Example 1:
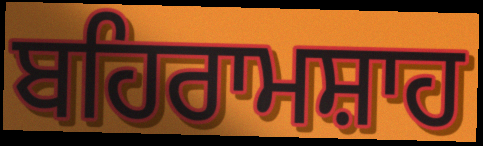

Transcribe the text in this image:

ਬਹਿਰਾਮਸ਼ਾਹ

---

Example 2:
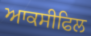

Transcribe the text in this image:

ਆਕਸੀਫਿਲ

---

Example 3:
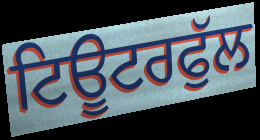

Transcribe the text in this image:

ਟਿਊਟਰਫੁੱਲ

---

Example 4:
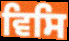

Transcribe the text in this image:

ਵਿਸਿ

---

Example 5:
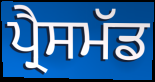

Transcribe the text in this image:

ਪ੍ਰੈਸਮੱਡ